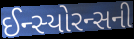
ઈન્સ્યોરન્સની